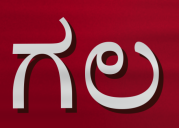
ಗಲ